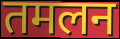
तमलन